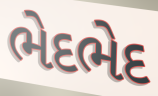
ભેદભેદ